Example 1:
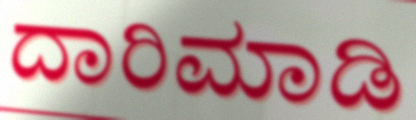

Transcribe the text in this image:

ದಾರಿಮಾಡಿ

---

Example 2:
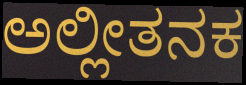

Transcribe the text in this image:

ಅಲ್ಲೀತನಕ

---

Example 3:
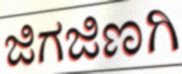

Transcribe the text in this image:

ಜಿಗಜಿಣಗಿ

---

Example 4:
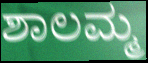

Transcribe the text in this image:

ಶಾಲಮ್ಮ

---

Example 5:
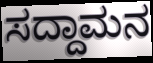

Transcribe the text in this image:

ಸದ್ದಾಮನ